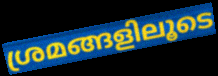
ശ്രമങ്ങളിലൂടെ